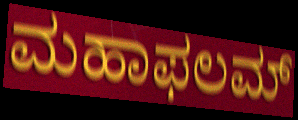
ಮಹಾಫಲಮ್